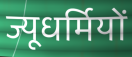
ज्यूधर्मियों